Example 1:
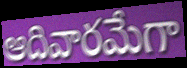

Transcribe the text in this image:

ఆదివారమేగా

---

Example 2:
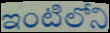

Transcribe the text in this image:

ఇంటిలోని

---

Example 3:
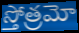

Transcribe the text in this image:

స్తోత్రమో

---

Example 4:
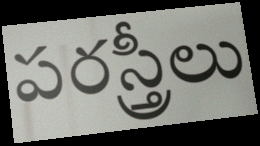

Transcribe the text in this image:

పరస్త్రీలు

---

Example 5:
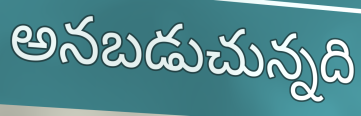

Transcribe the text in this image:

అనబడుచున్నది